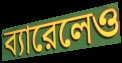
ব্যারেলেও